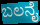
ಬಲನೈ